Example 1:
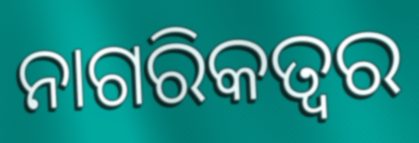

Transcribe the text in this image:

ନାଗରିକତ୍ୱର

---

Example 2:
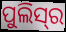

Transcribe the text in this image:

ପୁଲିସ୍‌ର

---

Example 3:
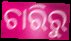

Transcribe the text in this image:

ଚାରିରୁ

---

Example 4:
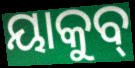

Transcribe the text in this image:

ୟାକୁବ୍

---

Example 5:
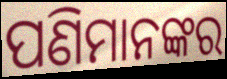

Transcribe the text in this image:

ପଣିମାନଙ୍କର